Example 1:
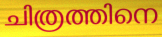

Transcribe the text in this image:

ചിത്രത്തിനെ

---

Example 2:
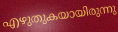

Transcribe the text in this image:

എഴുതുകയായിരുന്നു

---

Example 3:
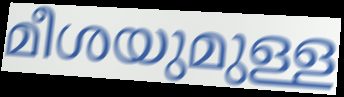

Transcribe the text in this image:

മീശയുമുള്ള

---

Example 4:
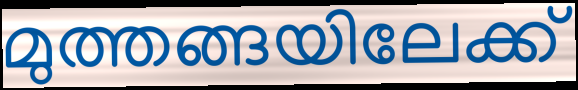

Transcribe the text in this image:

മുത്തങ്ങയിലേക്ക്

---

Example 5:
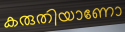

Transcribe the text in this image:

കരുതിയാണോ